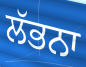
ਲੱਭਨਾ